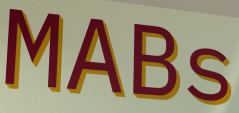
MABs